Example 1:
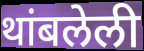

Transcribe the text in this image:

थांबलेली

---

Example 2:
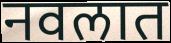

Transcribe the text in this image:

नवलात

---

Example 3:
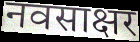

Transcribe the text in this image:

नवसाक्षर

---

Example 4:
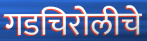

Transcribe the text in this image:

गडचिरोलीचे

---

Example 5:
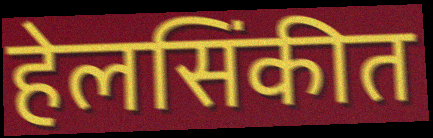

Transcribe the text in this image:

हेलसिंकीत